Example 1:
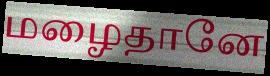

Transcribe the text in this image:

மழைதானே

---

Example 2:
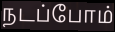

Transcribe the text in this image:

நடப்போம்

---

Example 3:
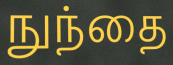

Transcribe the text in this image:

நுந்தை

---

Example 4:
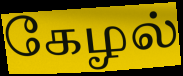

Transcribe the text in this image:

கேழல்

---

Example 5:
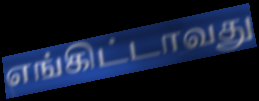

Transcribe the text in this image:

எங்கிட்டாவது